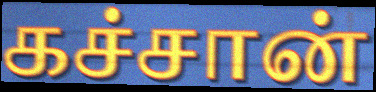
கச்சான்